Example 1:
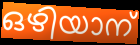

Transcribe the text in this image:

ഒഴിയാന്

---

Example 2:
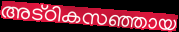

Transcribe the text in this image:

അട്ഠികസഞ്ഞായ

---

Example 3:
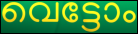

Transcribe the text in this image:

വെട്ടോം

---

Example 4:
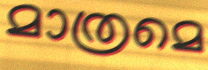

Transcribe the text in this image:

മാത്രമെ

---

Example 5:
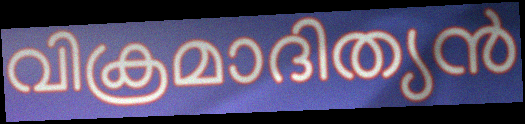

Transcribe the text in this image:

വിക്രമാദിത്യൻ